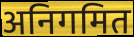
अनिगमित